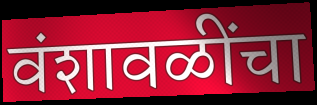
वंशावळींचा